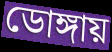
ডোঙ্গায়